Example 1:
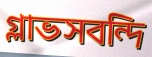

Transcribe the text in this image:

গ্লাভসবন্দি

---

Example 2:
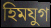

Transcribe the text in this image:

হিমযুগ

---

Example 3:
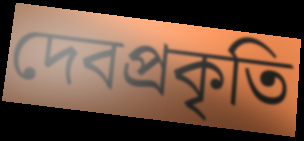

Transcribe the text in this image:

দেবপ্রকৃতি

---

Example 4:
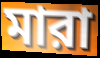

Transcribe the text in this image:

মারা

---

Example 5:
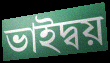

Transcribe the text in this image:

ভাইদ্বয়